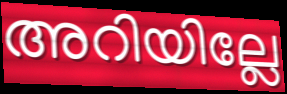
അറിയില്ലേ